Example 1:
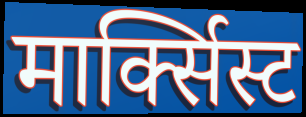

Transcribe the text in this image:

मार्क्सिस्ट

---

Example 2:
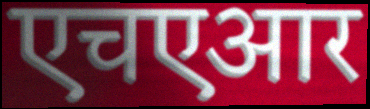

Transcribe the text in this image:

एचएआर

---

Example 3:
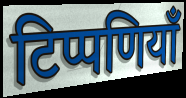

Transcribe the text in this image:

टिप्पणियाँ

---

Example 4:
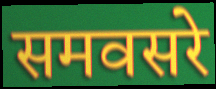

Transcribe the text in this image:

समवसरे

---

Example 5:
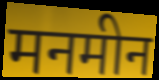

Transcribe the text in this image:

मनमीन